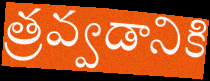
త్రవ్వడానికి